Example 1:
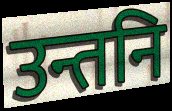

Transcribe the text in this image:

उन्तनि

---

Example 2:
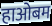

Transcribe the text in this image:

हाओबम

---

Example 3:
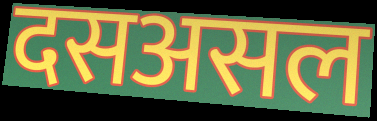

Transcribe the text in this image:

दसअसल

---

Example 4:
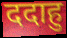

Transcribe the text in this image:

ददाहु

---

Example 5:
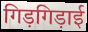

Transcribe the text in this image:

गिड़गिड़ाई